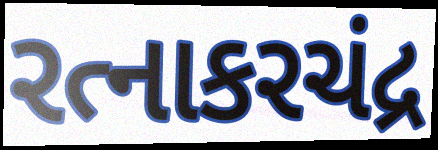
રત્નાકરચંદ્ર